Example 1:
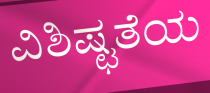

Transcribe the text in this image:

ವಿಶಿಷ್ಟತೆಯ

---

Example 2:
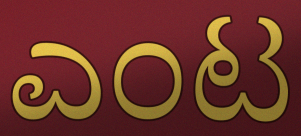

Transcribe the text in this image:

ಎಂಟ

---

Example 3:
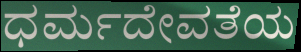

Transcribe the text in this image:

ಧರ್ಮದೇವತೆಯ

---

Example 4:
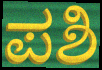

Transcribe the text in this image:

ಪಶಿ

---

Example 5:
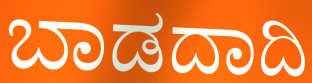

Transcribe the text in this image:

ಬಾಡದಾದಿ